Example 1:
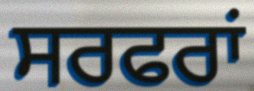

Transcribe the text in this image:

ਸਰਫਰਾਂ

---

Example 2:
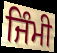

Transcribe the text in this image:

ਜਿੰਮੀ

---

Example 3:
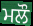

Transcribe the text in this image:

ਮਲੌ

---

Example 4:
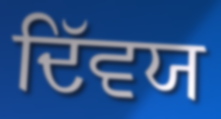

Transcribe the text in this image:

ਦਿੱਵਯ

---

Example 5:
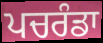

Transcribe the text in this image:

ਪਚਰੰਡਾ